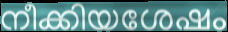
നീക്കിയശേഷം